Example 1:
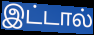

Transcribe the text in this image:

இட்டால்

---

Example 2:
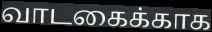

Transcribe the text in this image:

வாடகைக்காக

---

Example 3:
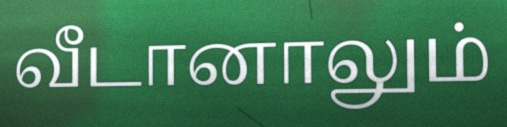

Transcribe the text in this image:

வீடானாலும்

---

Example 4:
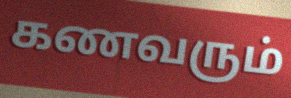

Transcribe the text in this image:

கணவரும்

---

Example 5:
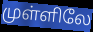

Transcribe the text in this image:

முள்ளிலே